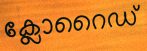
ക്ലോറൈഡ്